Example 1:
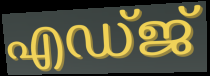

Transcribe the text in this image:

എഡ്ജ്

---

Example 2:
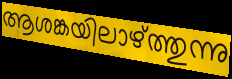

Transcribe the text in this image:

ആശങ്കയിലാഴ്ത്തുന്നു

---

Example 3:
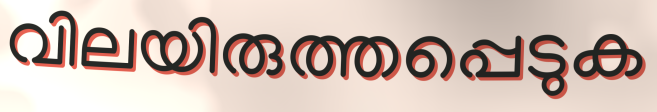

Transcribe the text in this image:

വിലയിരുത്തപ്പെടുക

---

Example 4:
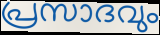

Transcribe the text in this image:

പ്രസാദവും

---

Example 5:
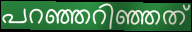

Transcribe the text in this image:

പറഞ്ഞറിഞ്ഞത്